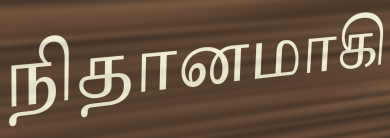
நிதானமாகி